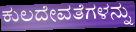
ಕುಲದೇವತೆಗಳನ್ನು